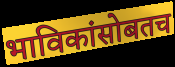
भाविकांसोबतच